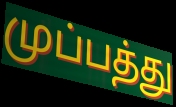
முப்பத்து